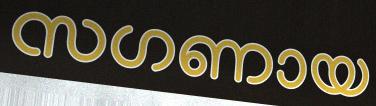
സഗണായ